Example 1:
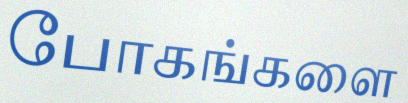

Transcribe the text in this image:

போகங்களை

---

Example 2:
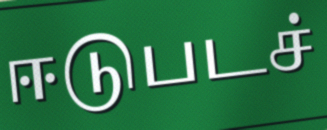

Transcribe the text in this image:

ஈடுபடச்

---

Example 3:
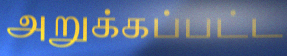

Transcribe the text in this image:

அறுக்கப்பட்ட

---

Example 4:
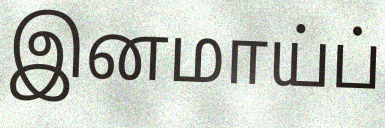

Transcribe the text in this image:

இனமாய்ப்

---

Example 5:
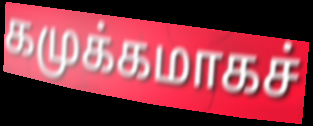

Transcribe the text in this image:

கமுக்கமாகச்